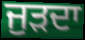
ਜੁੜਦਾ